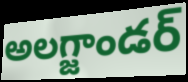
అలగ్జాండర్